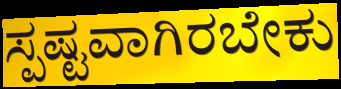
ಸ್ಪಷ್ಟವಾಗಿರಬೇಕು